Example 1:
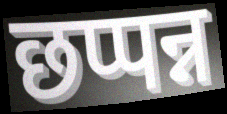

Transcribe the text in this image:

छप्पन्न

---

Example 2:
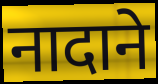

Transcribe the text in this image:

नादाने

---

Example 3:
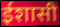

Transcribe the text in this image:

ईशासी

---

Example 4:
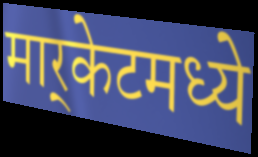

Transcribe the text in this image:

मार्केटमध्ये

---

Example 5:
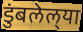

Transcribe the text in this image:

डुंबलेल्या